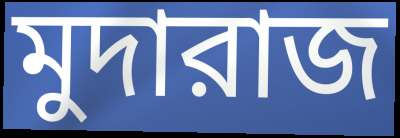
মুদারাজ